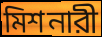
মিশনারী